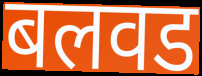
बलवड